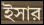
ইসার